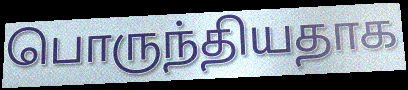
பொருந்தியதாக